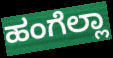
ಹಂಗೆಲ್ಲಾ